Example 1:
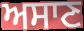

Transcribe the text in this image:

ਅਸਾਣ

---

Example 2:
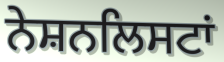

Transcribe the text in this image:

ਨੇਸ਼ਨਲਿਸਟਾਂ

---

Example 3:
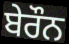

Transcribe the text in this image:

ਬੇਰੌਨ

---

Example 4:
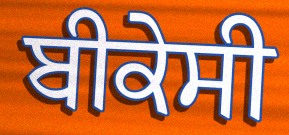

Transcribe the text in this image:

ਬੀਕੇਸੀ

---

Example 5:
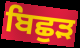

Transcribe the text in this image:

ਬਿਛੁੜ